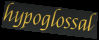
hypoglossal